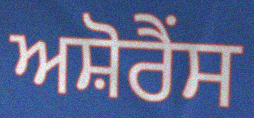
ਅਸ਼ੋਰੈਂਸ